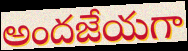
అందజేయగా